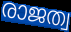
രാജത്വ